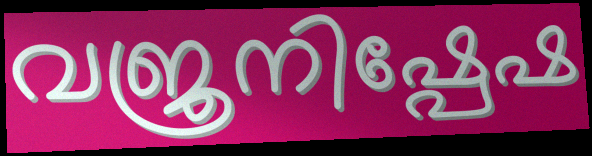
വജ്രനിഷ്പേഷ